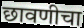
छावणीचा